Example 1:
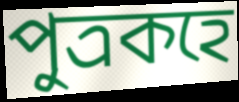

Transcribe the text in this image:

পুত্ৰকহে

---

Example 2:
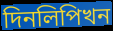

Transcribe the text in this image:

দিনলিপিখন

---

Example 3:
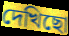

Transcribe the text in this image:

দেখিছো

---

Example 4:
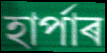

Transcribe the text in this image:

হাৰ্পাৰ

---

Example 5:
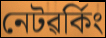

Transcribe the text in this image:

নেটৱৰ্কিং